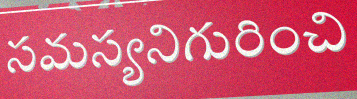
సమస్యనిగురించి